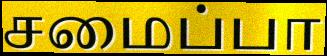
சமைப்பா